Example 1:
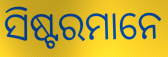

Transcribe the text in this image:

ସିଷ୍ଟରମାନେ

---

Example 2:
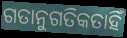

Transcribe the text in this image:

ଗତାନୁଗତିକତାହିଁ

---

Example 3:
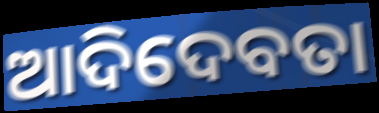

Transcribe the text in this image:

ଆଦିଦେବତା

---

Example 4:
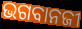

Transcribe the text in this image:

ଭଗବାନଜୀ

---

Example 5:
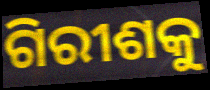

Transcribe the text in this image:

ଗିରୀଶକୁ